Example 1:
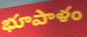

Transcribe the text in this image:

భూపాళం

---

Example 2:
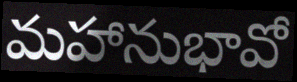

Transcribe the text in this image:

మహానుభావో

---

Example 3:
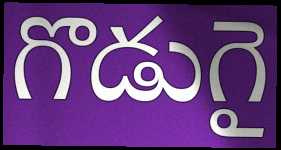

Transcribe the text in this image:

గొడుగై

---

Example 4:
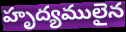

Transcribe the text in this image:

హృద్యములైన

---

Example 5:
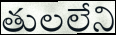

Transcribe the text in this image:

తులలేని